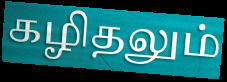
கழிதலும்